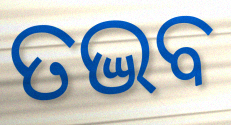
ତଦ୍ଭବ